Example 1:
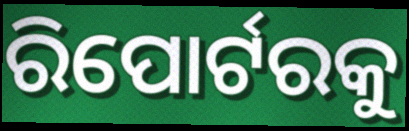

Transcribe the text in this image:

ରିପୋର୍ଟରକୁ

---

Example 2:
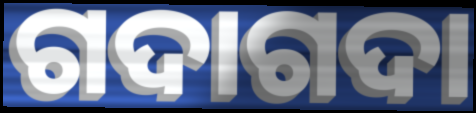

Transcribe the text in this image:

ଗଦାଗଦା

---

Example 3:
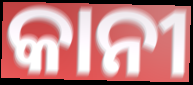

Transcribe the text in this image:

କାନୀ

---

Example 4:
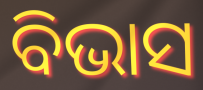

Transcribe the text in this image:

ବିଭାସ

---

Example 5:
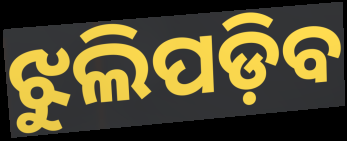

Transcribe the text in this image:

ଝୁଲିପଡ଼ିବ